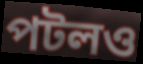
পটলও